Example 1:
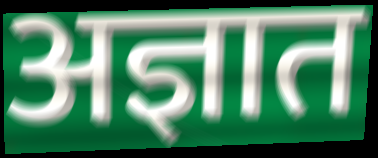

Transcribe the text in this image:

अज्ञात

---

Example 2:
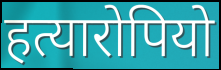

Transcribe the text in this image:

हत्यारोपियो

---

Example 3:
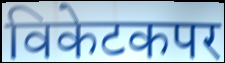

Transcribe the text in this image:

विकेटकपर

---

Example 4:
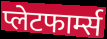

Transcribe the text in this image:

प्लेटफार्म्स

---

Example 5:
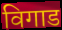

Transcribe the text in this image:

विगाड